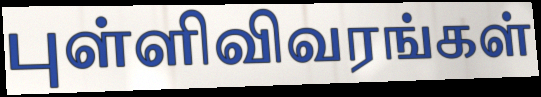
புள்ளிவிவரங்கள்